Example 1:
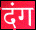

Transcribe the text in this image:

दंग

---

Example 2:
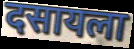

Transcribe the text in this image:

दसायला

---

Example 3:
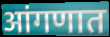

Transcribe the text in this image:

आंगणात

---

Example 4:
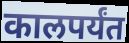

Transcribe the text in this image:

कालपर्यंत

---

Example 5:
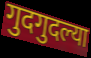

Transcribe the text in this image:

गुदगुदल्या